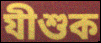
যীশুক